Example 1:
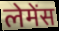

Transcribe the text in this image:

लेमेंस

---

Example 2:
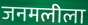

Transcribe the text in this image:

जनमलीला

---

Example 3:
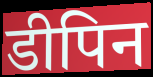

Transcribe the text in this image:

डीपिन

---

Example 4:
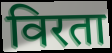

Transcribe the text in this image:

विरता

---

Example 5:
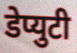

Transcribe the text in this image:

डेप्युटी